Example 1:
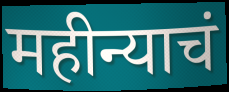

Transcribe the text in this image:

महीन्याचं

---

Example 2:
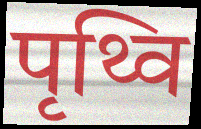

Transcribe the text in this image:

पृथ्वि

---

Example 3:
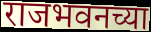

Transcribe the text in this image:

राजभवनच्या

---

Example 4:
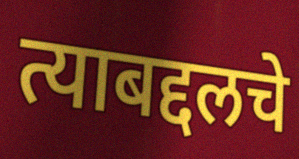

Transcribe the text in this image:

त्याबद्दलचे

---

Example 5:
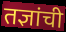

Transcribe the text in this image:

तज्ञांची